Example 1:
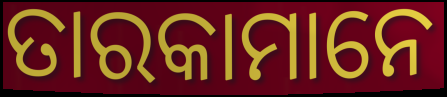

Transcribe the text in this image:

ତାରକାମାନେ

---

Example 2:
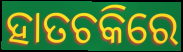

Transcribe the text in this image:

ହାତଚକିରେ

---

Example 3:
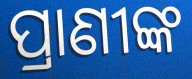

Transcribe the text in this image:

ପ୍ରାଣୀଙ୍କ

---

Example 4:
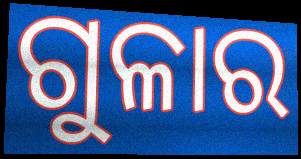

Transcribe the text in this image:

ଗୁଳାର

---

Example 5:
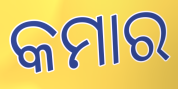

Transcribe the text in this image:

କମାର